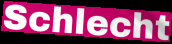
Schlecht